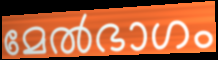
മേൽഭാഗം